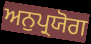
ਅਨੁਪ੍ਰਯੋਗ